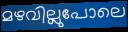
മഴവില്ലുപോലെ